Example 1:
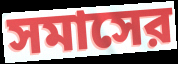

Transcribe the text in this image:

সমাসের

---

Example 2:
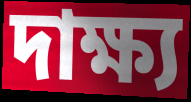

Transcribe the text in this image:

দাক্ষ্য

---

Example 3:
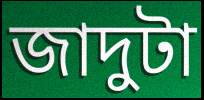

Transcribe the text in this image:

জাদুটা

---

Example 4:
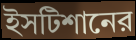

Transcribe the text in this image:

ইসটিশানের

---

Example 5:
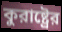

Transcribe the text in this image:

কুরাষ্ট্রের